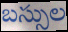
బస్సుల